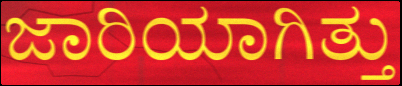
ಜಾರಿಯಾಗಿತ್ತು